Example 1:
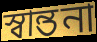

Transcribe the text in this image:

স্বান্তনা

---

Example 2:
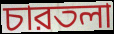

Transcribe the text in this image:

চারতলা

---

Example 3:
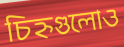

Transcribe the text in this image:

চিহ্নগুলোও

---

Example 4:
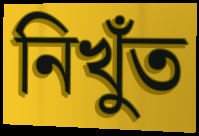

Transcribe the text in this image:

নিখুঁত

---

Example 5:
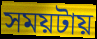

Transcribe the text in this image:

সময়টায়